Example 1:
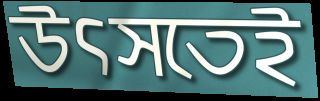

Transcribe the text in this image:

উৎসতেই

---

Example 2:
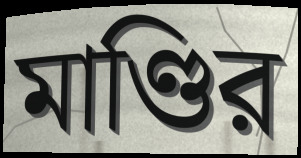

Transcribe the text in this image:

মাণ্ডির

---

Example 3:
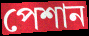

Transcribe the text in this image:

পেশান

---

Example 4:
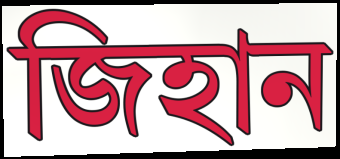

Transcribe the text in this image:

জিহান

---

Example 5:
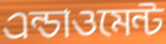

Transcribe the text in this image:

এন্ডাওমেন্ট